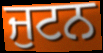
ਜੁਟਨ